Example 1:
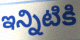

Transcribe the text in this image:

ఇన్నిటికి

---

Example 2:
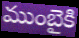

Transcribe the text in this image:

ముంబైకి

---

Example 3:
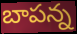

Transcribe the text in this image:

బాపన్న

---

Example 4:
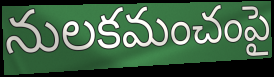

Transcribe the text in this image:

నులకమంచంపై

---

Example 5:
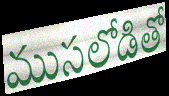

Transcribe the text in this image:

ముసలోడితో